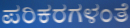
ಪರಿಕರಗಳಂತೆ